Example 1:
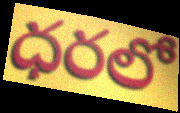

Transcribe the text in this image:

ధరలో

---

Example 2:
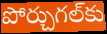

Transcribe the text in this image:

పోర్చుగల్‌కు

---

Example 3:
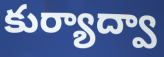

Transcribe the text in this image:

కుర్యాద్వా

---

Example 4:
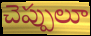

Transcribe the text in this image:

చెప్పులూ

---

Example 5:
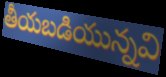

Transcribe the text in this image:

తీయబడియున్నవి